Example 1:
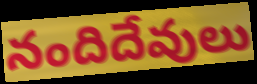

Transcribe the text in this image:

నందిదేవులు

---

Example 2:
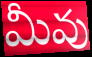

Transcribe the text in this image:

మీవు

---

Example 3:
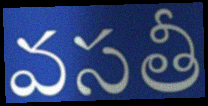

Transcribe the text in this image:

వసతీ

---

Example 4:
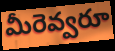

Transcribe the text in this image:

మీరెవ్వరూ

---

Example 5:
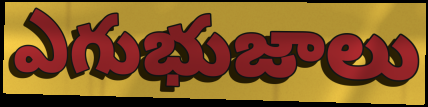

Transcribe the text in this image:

ఎగుభుజాలు